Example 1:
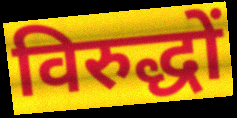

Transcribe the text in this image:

विरुद्धों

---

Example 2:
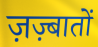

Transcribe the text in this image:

ज़ज़्बातों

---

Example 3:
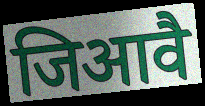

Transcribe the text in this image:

जिआवै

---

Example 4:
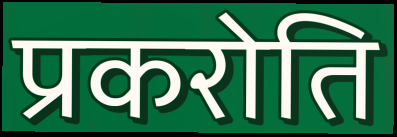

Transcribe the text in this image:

प्रकरोति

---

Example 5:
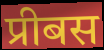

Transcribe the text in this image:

प्रीबस